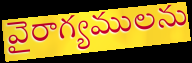
వైరాగ్యములను